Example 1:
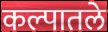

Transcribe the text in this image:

कल्पातले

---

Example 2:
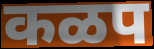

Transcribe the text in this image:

कळप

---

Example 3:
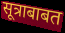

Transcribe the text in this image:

सूत्राबाबत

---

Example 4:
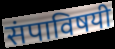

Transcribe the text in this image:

संपाविषयी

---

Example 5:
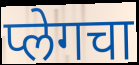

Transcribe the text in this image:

प्लेगचा